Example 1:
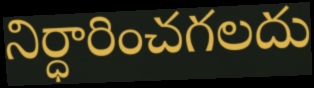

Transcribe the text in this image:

నిర్ధారించగలదు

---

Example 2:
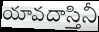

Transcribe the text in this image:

యావదాస్తినీ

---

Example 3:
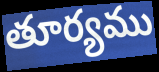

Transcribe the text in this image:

తూర్యము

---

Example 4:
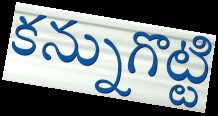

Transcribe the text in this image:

కన్నుగొట్టి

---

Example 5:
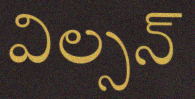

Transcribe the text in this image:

విల్సన్